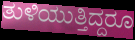
ತುಳಿಯುತ್ತಿದ್ದರೂ